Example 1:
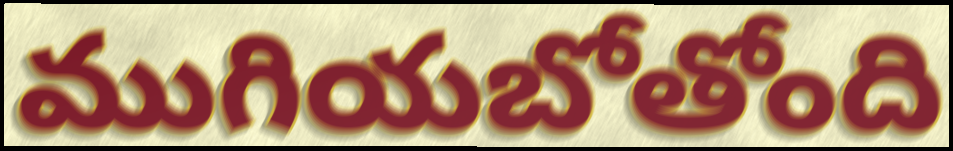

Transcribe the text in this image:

ముగియబోతోంది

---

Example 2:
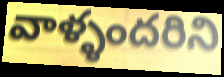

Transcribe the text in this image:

వాళ్ళందరిని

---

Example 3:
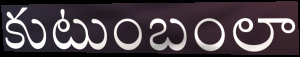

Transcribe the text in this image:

కుటుంబంలా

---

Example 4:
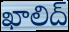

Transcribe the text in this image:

ఖాలిద్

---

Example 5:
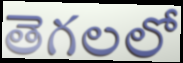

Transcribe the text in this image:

తెగలలో